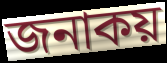
জনাকয়